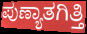
ಪುಣ್ಯಾತಗಿತ್ತಿ